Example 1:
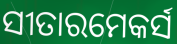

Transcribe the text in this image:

ସୀତାରମେକର୍ସ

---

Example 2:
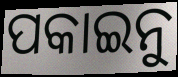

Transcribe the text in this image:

ପକାଇନୁ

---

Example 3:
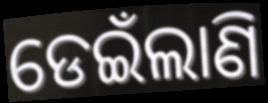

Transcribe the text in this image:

ଡେଇଁଲାଣି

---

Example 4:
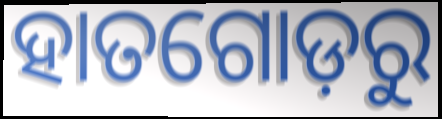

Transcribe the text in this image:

ହାତଗୋଡ଼ରୁ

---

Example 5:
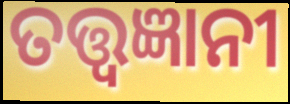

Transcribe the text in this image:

ତତ୍ତ୍ଵଜ୍ଞାନୀ